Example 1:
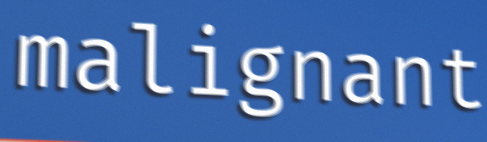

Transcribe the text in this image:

malignant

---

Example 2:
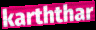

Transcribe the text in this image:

karththar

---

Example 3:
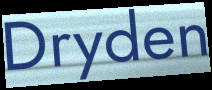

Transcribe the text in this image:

Dryden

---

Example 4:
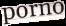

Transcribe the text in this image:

porno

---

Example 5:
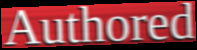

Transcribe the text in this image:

Authored